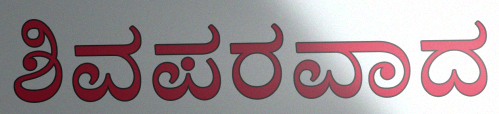
ಶಿವಪರವಾದ